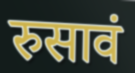
रुसावं